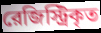
রেজিস্ট্রিকৃত